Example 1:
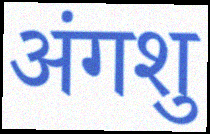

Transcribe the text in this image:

अंगशु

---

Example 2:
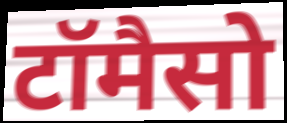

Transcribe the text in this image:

टॉमैसो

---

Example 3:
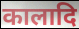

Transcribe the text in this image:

कालादि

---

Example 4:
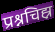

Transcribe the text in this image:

प्रश्नचिह्न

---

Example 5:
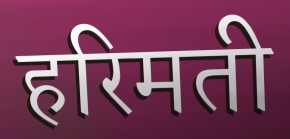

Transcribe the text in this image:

हरिमती